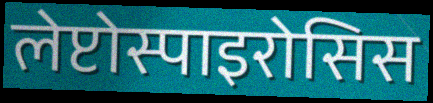
लेप्टोस्पाइरोसिस